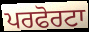
ਪਰਫੋਰਟਾ